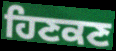
ਹਿਣਕਣ